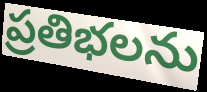
ప్రతిభలను